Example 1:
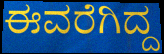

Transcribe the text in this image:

ಈವರೆಗಿದ್ದ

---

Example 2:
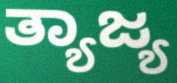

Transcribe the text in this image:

ತ್ಯಾಜ್ಯ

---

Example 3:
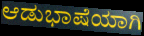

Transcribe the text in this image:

ಆಡುಭಾಷೆಯಾಗಿ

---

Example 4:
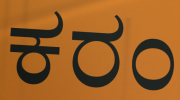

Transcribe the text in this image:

ಕರಂ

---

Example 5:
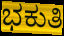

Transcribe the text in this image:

ಭಕುತಿ